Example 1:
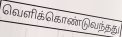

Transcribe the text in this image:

வெளிக்கொண்டுவந்தது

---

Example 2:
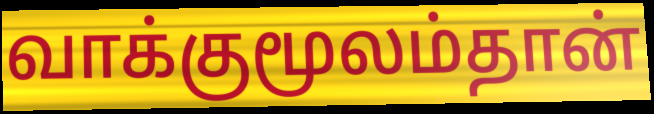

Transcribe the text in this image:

வாக்குமூலம்தான்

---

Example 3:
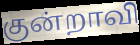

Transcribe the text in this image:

குன்றாவி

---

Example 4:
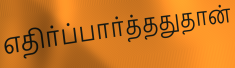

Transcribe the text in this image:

எதிர்ப்பார்த்ததுதான்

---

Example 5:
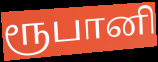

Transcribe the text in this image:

ரூபானி